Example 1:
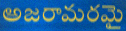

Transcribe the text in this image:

అజరామరమై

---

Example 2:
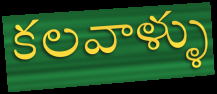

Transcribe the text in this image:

కలవాళ్ళు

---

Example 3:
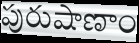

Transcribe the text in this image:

పురుషాణాం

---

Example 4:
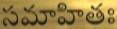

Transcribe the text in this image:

సమాహితః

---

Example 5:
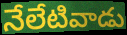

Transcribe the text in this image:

నేలేటివాడు